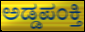
ಅಡ್ಡಪಂಕ್ತಿ